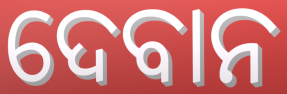
ଦେବାନ